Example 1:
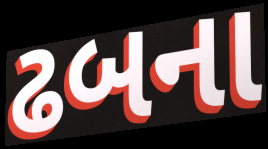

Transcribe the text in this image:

ઢબના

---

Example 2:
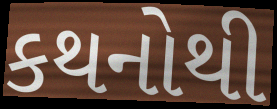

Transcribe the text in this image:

કથનોથી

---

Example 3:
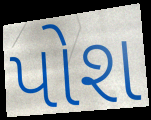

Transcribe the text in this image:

પોશ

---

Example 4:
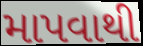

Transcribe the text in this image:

માપવાથી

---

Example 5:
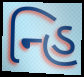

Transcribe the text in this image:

ન્હિ